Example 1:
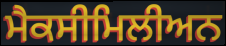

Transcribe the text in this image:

ਮੈਕਸੀਮਿਲੀਅਨ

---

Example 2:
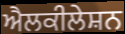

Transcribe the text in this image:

ਐਲਕੀਲੇਸ਼ਨ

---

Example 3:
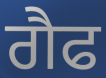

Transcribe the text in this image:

ਗੈਫ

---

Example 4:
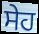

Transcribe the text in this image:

ਸੇਹ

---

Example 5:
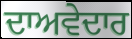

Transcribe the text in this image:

ਦਾਅਵੇਦਾਰ